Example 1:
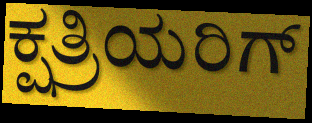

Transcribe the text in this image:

ಕ್ಷತ್ರಿಯರಿಗ್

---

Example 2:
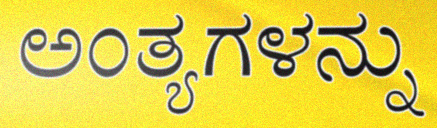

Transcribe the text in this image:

ಅಂತ್ಯಗಳನ್ನು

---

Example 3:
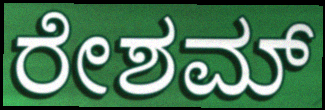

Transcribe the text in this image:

ರೇಶಮ್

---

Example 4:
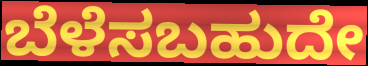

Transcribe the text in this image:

ಬೆಳೆಸಬಹುದೇ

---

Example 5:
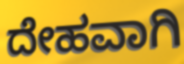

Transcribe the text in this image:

ದೇಹವಾಗಿ